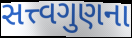
સત્ત્વગુણના